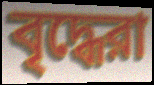
বৃদ্ধেরা